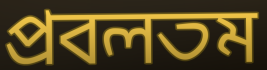
প্রবলতম